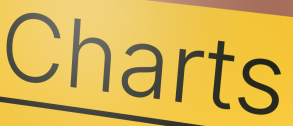
Charts